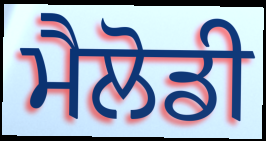
ਮੈਲੋਡੀ